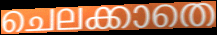
ചെലക്കാതെ